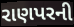
રાણપરની